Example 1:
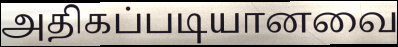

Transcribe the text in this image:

அதிகப்படியானவை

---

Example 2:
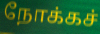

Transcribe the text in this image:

நோக்கச்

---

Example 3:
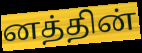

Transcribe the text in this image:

னத்தின்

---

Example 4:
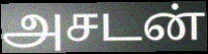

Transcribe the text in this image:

அசடன்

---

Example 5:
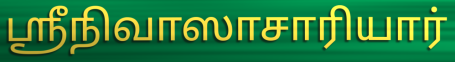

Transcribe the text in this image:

ஸ்ரீநிவாஸாசாரியார்